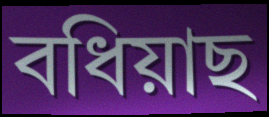
বধিয়াছ